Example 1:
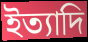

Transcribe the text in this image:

ইত্যাদি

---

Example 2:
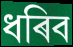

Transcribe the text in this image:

ধৰিব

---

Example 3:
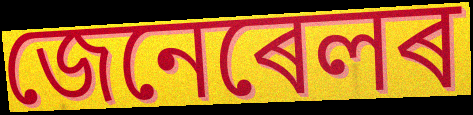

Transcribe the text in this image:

জেনেৰেলৰ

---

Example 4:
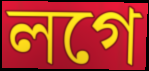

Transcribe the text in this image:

লগে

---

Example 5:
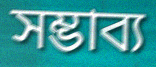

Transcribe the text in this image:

সম্ভাব্য